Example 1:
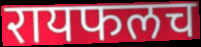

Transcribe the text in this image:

रायफलच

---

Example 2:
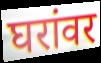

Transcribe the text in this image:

घरांवर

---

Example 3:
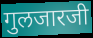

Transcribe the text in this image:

गुलजारजी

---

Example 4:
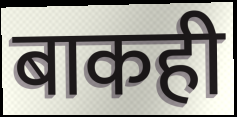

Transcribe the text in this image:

बाकही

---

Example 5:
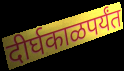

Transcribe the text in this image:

दीर्घकाळपर्यंत